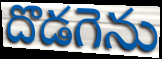
దొడగెను